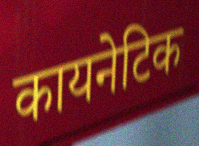
कायनेटिक